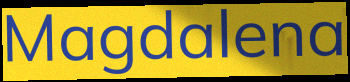
Magdalena